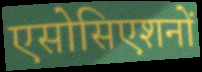
एसोसिएशनों